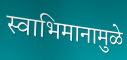
स्वाभिमानामुळे